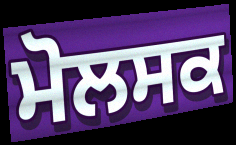
ਮੋਲਸਕ